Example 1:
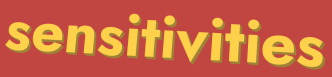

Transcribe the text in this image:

sensitivities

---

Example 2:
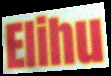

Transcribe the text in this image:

Elihu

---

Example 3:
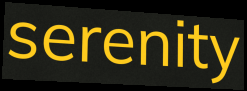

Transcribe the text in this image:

serenity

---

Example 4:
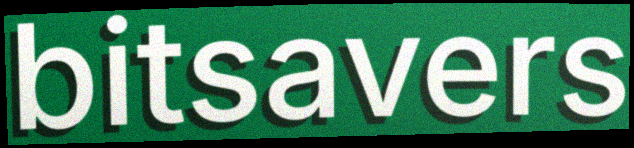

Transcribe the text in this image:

bitsavers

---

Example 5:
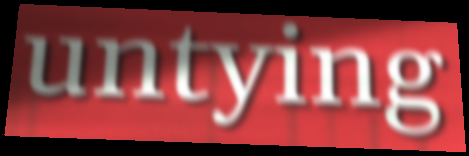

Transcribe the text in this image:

untying